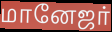
மானேஜர்